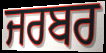
ਜਰਬਰ